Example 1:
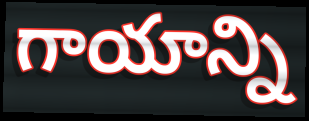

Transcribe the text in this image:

గాయాన్ని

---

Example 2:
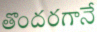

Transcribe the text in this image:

తొందరగానే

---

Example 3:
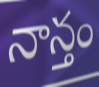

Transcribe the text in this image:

నాన్తం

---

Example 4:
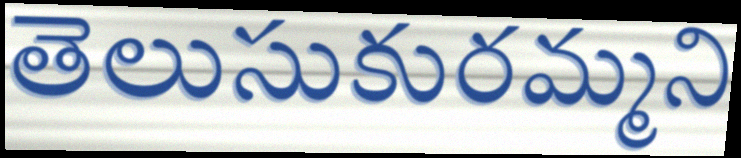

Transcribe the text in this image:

తెలుసుకురమ్మని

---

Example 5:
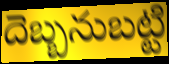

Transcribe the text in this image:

దెబ్బనుబట్టి